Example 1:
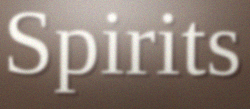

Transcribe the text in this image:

Spirits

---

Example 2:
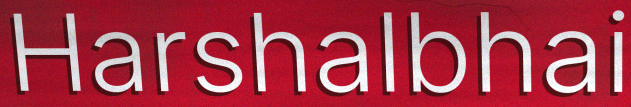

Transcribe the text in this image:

Harshalbhai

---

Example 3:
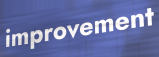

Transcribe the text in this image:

improvement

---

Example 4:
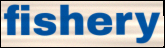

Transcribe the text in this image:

fishery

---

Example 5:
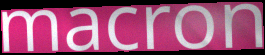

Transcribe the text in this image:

macron